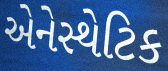
એનેસ્થેટિક